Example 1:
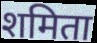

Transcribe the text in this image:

शमिता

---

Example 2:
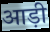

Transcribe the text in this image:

आड़ी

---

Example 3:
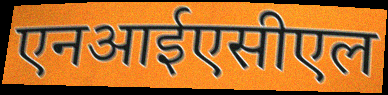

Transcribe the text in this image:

एनआईएसीएल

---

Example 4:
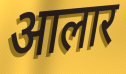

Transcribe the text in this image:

आलार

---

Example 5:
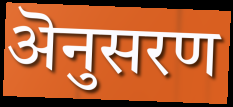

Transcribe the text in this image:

ऄनुसरण